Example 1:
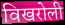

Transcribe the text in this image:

विखरोली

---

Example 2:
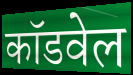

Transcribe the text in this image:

कॉडवेल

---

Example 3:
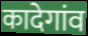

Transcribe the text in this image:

कादेगांव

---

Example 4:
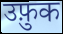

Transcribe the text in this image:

उफ़ुक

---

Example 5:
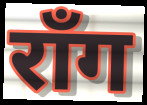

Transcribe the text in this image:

रॉंग